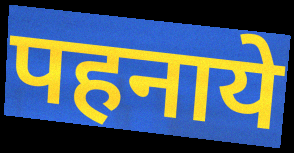
पहनाये